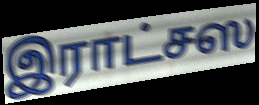
இராட்சஸ